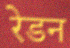
रेडन